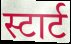
स्टार्ट